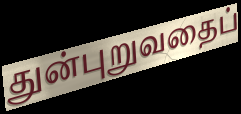
துன்புறுவதைப்